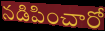
నడిపించారో